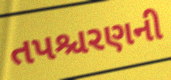
તપશ્ચરણની